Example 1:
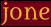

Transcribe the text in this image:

jone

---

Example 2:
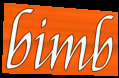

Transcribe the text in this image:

bimb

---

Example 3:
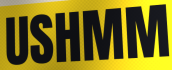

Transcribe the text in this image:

USHMM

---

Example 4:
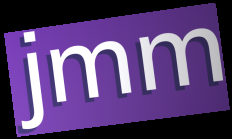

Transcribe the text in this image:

jmm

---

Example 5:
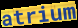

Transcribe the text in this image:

atrium